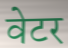
वेटर